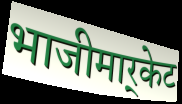
भाजीमार्केट